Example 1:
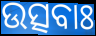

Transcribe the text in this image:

ଉତ୍ସବାଃ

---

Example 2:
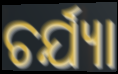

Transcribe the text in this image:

ଚର୍ଯ୍ଯା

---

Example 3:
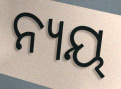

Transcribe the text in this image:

ନ୍ୟୟ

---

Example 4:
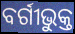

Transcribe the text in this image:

ବର୍ଗୀଭୁକ୍ତ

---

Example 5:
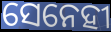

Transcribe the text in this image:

ସେନେହୀ